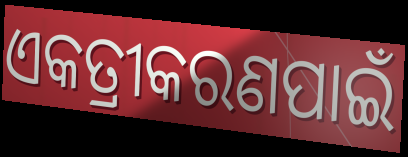
ଏକତ୍ରୀକରଣପାଇଁ